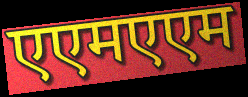
एएमएएम